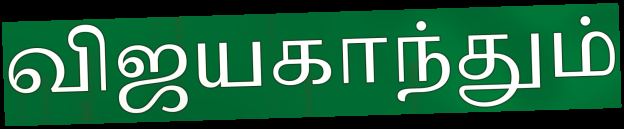
விஜயகாந்தும்